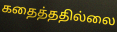
கதைத்ததில்லை